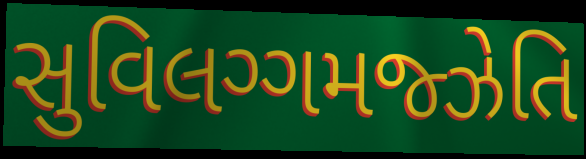
સુવિલગ્ગમજ્ઝેતિ